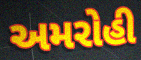
અમરોહી